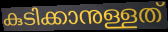
കുടിക്കാനുള്ളത്